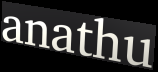
anathu